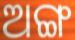
ଅଙ୍ଗ